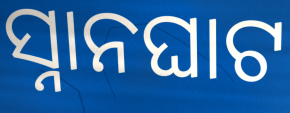
ସ୍ନାନଘାଟ